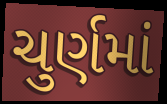
ચુર્ણમાં